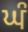
ਘੰ